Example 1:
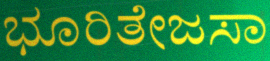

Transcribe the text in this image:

ಭೂರಿತೇಜಸಾ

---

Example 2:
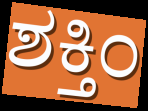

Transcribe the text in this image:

ಶಕ್ತಿಂ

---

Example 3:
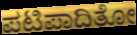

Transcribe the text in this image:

ಪಟಿಪಾದಿತೋ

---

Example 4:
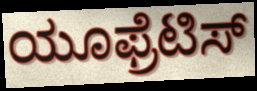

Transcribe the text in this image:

ಯೂಫ್ರೆಟಿಸ್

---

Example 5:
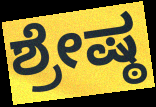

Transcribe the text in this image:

ಶ್ರೇಷ್ಠ